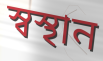
স্বস্থান